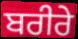
ਬਰੀਰੇ